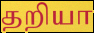
தறியா